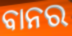
ବାନର